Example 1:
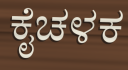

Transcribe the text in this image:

ಕೈಚಳಕ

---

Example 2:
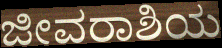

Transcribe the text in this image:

ಜೀವರಾಶಿಯ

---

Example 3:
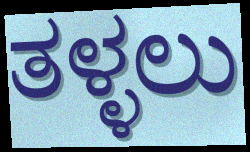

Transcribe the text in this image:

ತಳ್ಳಲು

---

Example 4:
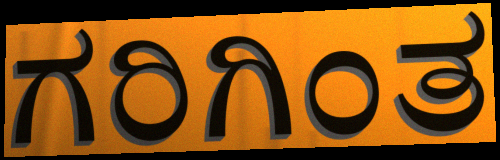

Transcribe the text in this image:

ಗರಿಗಿಂತ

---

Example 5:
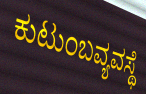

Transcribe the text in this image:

ಕುಟುಂಬವ್ಯವಸ್ಥೆ